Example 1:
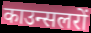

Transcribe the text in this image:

काउन्सलरों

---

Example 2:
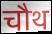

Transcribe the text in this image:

चौथ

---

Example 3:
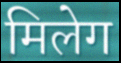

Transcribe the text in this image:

मिलेग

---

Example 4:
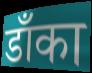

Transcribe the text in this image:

डाँका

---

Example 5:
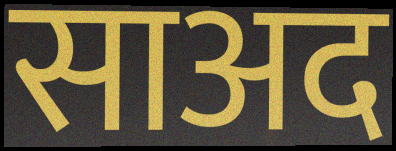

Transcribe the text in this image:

साअद